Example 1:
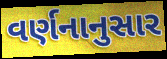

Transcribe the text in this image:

વર્ણનાનુસાર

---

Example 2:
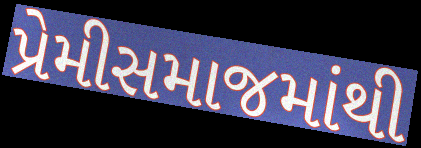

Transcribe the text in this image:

પ્રેમીસમાજમાંથી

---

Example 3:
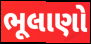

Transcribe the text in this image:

ભૂલાણો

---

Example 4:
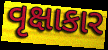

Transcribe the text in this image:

વૃક્ષાકાર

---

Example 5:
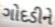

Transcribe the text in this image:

ગોદડીને